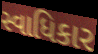
સ્વાધિકાર